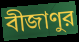
বীজাণুর